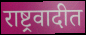
राष्ट्रवादीत